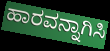
ಹಾರವನ್ನಾಗಿಸಿ